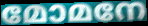
മോമനേ